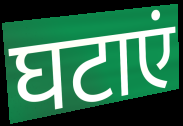
घटाएं